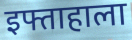
इफ्ताहाला